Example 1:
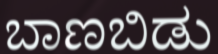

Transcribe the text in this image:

ಬಾಣಬಿಡು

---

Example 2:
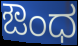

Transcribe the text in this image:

ಔಂಧ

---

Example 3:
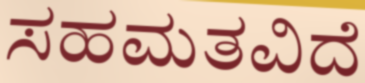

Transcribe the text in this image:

ಸಹಮತವಿದೆ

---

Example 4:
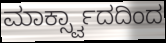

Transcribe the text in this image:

ಮಾರ್ಕ್ಸ್ವಾದದಿಂದ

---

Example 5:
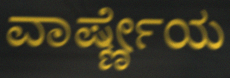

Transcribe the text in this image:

ವಾರ್ಷ್ಣೇಯ